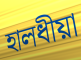
হালধীয়া